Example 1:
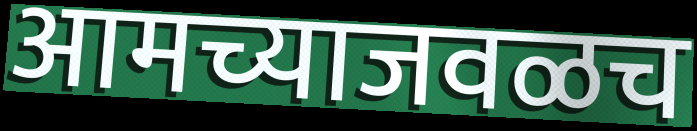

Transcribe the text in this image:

आमच्याजवळच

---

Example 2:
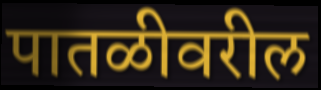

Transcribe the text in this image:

पातळीवरील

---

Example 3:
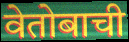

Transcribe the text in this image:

वेतोबाची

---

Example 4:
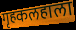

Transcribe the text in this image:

गृहकलहाला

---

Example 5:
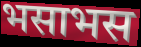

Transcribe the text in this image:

भसाभस